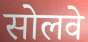
सोलवे